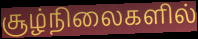
சூழ்நிலைகளில்